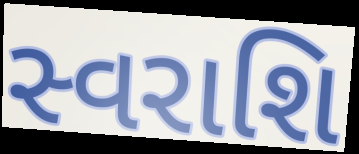
સ્વરાશિ